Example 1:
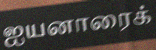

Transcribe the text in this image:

ஐயனாரைக்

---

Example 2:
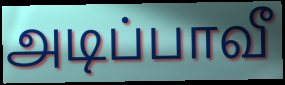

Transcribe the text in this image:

அடிப்பாவீ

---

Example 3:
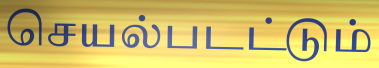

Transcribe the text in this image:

செயல்படட்டும்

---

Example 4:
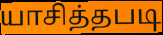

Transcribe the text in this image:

யாசித்தபடி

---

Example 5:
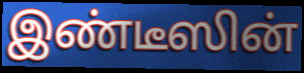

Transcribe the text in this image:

இண்டீஸின்